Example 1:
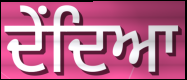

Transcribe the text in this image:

ਦੇਂਦਿਆ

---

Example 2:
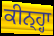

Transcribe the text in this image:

ਕੀਨ੍ਹ੍ਹਾ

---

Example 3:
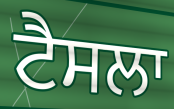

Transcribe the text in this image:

ਟੈਸਲਾ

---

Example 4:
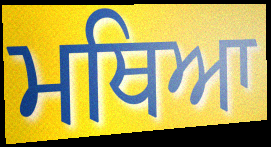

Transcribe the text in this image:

ਮਥਿਆ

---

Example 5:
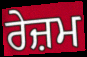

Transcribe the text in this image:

ਰੇਜ਼ਮ